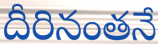
దీరినంతనే